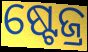
ଷ୍ଟେଜ୍ର